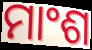
ମାଂଶ